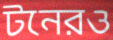
টনেরও